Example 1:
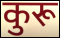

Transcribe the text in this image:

कुरू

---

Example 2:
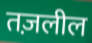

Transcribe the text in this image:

तज़लील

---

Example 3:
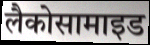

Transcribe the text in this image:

लैकोसामाइड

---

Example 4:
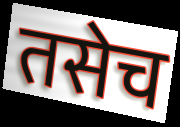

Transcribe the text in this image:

तसेच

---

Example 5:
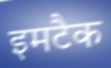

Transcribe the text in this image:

इमटैक